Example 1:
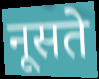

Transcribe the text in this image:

नूसते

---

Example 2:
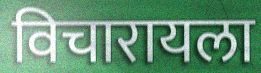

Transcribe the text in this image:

विचारायला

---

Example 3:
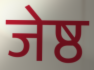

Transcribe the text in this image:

जेष्ठ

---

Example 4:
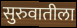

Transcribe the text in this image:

सुरुवातीला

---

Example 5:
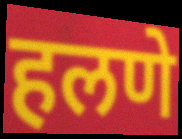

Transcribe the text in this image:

हलणे